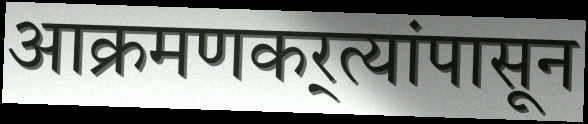
आक्रमणकर्त्यांपासून